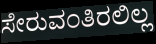
ಸೇರುವಂತಿರಲಿಲ್ಲ